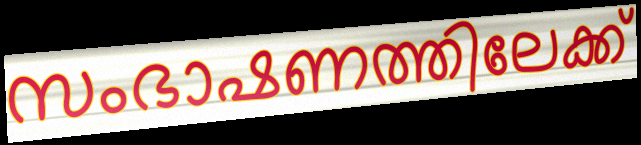
സംഭാഷണത്തിലേക്ക്